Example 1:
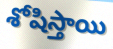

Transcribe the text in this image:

శోషిస్తాయి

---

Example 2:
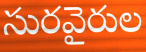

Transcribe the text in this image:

సురవైరుల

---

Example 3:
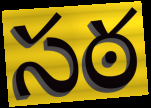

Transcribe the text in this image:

సఠ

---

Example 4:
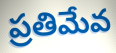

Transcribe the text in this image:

ప్రతిమేవ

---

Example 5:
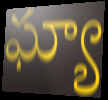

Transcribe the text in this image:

ఘ్యా